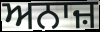
ਅਨਾਜ਼